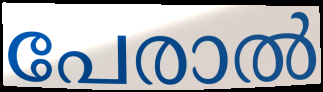
പേരാൽ